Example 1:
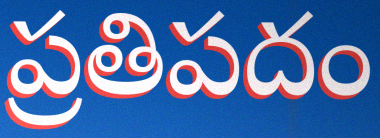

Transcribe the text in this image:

ప్రతిపదం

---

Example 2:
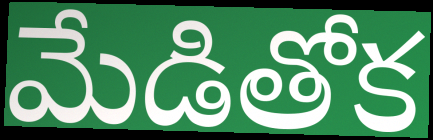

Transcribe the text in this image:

మేడితోక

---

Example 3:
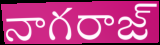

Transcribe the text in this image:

నాగరాజ్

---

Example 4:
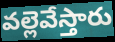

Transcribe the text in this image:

వల్లెవేస్తారు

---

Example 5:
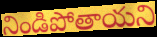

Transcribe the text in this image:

నిండిపోతాయని